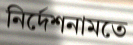
নির্দেশনামতে